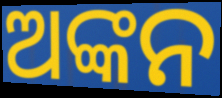
ଅଙ୍କନ